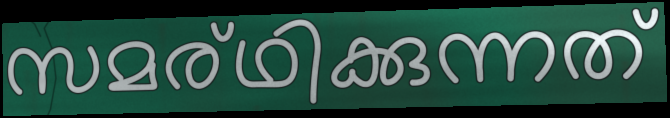
സമര്ഥിക്കുന്നത്